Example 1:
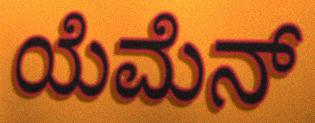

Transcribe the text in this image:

ಯೆಮೆನ್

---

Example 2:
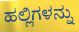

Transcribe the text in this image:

ಹಲ್ಲಿಗಳನ್ನು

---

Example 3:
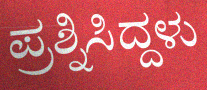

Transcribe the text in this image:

ಪ್ರಶ್ನಿಸಿದ್ದಳು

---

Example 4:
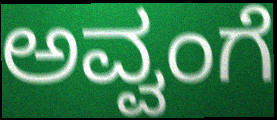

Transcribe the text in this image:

ಅವ್ವಂಗೆ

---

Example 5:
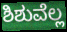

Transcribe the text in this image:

ಶಿಶುವೆಲ್ಲ